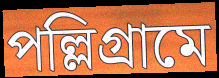
পল্লিগ্রামে